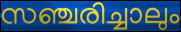
സഞ്ചരിച്ചാലും